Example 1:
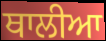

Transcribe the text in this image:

ਥਾਲੀਆ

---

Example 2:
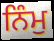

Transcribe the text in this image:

ਨਿੰਮੁ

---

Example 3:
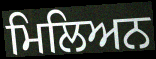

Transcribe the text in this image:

ਮਿਲਿਅਨ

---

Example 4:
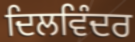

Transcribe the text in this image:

ਦਿਲਵਿੰਦਰ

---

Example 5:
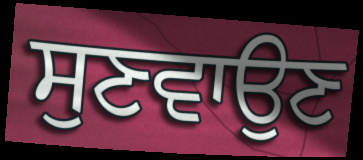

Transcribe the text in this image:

ਸੁਣਵਾਉਣ